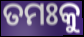
ତମଃକୁ